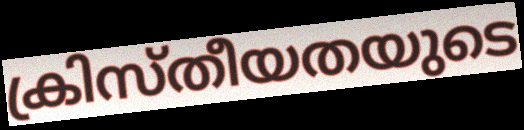
ക്രിസ്തീയതയുടെ